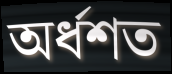
অর্ধশত